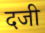
दजी